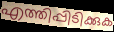
എത്തിപ്പിടിക്കുക